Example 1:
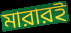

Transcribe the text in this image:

মারারই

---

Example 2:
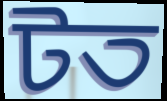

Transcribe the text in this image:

টত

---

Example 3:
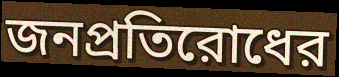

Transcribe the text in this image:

জনপ্রতিরোধের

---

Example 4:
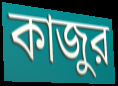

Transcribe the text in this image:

কাজুর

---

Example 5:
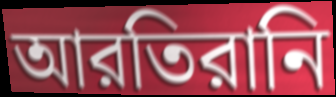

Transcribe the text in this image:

আরতিরানি